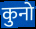
कुनो